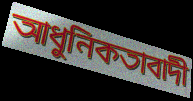
আধুনিকতাবাদী